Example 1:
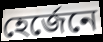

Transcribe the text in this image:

হেৰ্জেনে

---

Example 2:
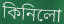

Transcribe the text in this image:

কিনিলো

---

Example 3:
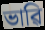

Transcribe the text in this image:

ভাৱি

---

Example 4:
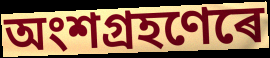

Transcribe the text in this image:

অংশগ্ৰহণেৰে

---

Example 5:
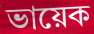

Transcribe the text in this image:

ভায়েক